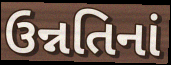
ઉન્નતિનાં